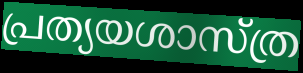
പ്രത്യയശാസ്ത്ര